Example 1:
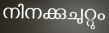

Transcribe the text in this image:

നിനക്കുചുറ്റും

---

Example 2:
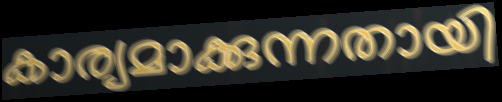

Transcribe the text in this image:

കാര്യമാക്കുന്നതായി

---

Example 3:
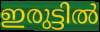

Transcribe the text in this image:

ഇരുട്ടിൽ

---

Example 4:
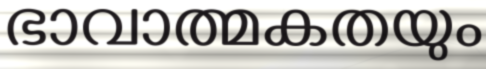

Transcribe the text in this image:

ഭാവാത്മകതയും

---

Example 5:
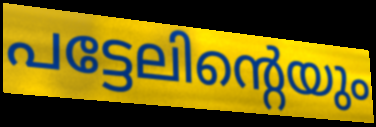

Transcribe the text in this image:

പട്ടേലിന്റെയും